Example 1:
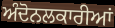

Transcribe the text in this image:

ਅੰਦੋਨਲਕਾਰੀਆਂ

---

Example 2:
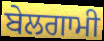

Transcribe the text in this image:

ਬੇਲਗਾਮੀ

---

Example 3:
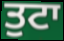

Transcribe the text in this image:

ਤੁਟਾ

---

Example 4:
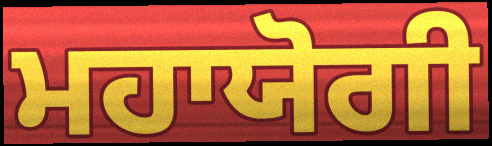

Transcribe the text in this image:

ਮਹਾਯੋਗੀ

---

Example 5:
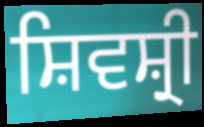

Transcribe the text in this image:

ਸ਼ਿਵਸ਼੍ਰੀ